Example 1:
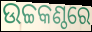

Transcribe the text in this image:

ଉଚ୍ଚକଣ୍ଠରେ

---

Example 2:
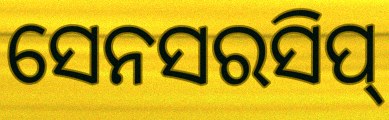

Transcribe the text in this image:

ସେନସରସିପ୍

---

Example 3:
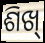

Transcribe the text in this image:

ଶିଖ୍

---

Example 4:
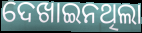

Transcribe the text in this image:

ଦେଖାଇନଥିଲା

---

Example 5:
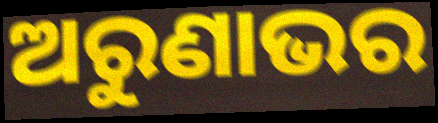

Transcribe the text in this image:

ଅରୁଣାଭର